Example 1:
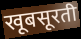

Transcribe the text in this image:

खूबसूरती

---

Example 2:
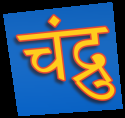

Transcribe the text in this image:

चंद्रु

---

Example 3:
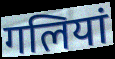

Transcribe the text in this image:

गलियां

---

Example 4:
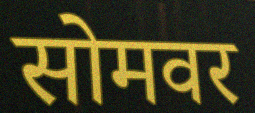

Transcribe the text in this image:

सोमवर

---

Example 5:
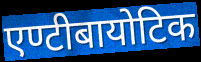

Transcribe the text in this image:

एण्टीबायोटिक